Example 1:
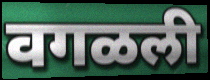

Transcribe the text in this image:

वगळली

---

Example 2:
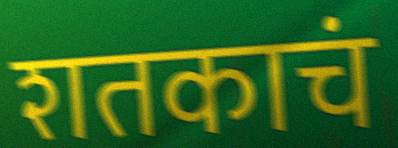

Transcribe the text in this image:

शतकाचं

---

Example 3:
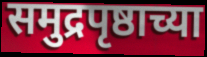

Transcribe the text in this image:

समुद्रपृष्ठाच्या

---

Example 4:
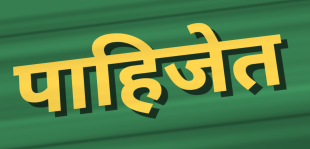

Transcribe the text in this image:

पाहिजेत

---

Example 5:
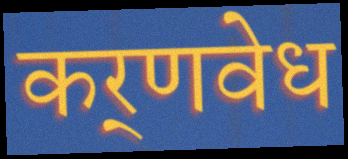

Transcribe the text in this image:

कर्णवेध